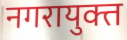
नगरायुक्त